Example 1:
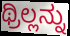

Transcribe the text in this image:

ಥ್ರಿಲ್ಲನ್ನು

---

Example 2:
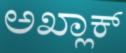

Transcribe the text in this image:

ಅಖ್ಲಾಕ್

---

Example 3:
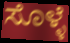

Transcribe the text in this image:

ಸೊಳ್ಳೆ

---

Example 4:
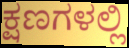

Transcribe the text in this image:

ಕ್ಷಣಗಳಲ್ಲಿ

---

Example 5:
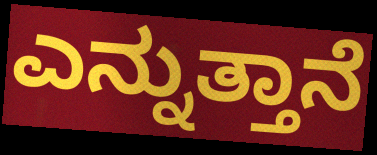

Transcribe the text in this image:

ಎನ್ನುತ್ತಾನೆ